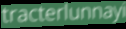
tracterlunnayi